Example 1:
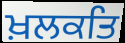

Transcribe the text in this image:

ਖ਼ਲਕਤਿ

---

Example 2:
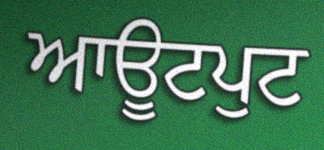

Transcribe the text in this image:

ਆਊਟਪੁਟ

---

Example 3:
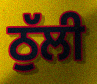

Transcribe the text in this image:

ਠੁੱਲੀ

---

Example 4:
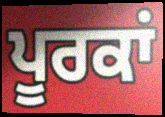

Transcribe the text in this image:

ਪੂਰਕਾਂ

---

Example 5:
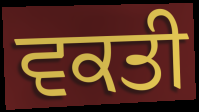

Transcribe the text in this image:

ਵਕਤੀ